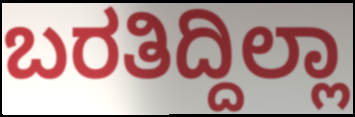
ಬರತಿದ್ದಿಲ್ಲಾ